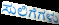
ಸುಲಿಗೆಗಳು